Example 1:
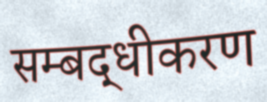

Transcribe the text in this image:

सम्बद्धीकरण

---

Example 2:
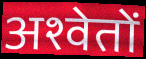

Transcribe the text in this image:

अश्वेतों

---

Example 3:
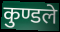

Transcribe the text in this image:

कुण्डले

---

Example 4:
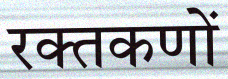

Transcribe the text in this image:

रक्तकणों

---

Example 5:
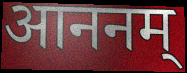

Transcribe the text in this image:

आननम्